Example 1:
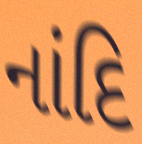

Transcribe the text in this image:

નાંદિ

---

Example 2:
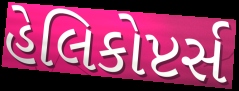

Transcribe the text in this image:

હેલિકોપ્ટર્સ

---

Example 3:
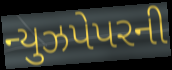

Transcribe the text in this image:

ન્યુઝપેપરની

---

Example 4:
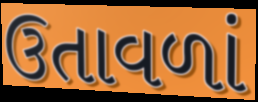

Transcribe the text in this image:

ઉતાવળાં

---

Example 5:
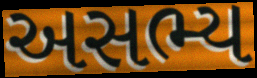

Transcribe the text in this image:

અસભ્ય